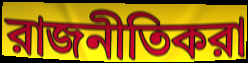
রাজনীতিকরা